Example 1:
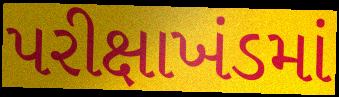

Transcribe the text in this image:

પરીક્ષાખંડમાં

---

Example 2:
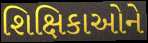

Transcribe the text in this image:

શિક્ષિકાઓને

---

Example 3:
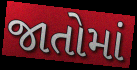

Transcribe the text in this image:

જાતોમાં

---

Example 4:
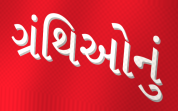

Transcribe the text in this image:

ગ્રંથિઓનું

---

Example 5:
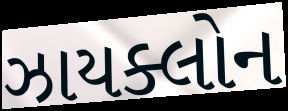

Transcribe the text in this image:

ઝાયક્લોન